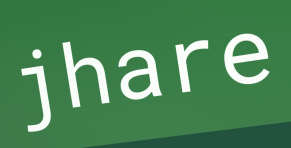
jhare